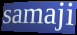
samaji